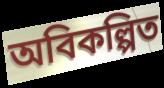
অবিকল্পিত